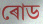
ৰোড